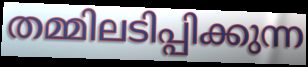
തമ്മിലടിപ്പിക്കുന്ന